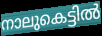
നാലുകെട്ടിൽ